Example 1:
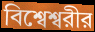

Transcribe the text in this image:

বিশ্বেশ্বরীর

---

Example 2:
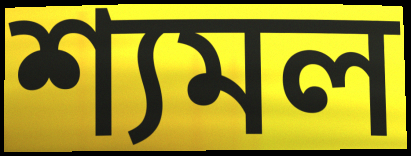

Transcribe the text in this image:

শ্যমল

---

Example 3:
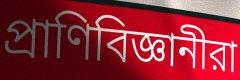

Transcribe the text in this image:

প্রাণিবিজ্ঞানীরা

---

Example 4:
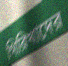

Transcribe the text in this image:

গিরিখাদের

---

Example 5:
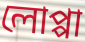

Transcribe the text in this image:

লোপ্পা